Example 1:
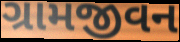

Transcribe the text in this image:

ગ્રામજીવન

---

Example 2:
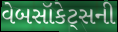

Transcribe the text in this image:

વેબસૉકેટ્સની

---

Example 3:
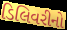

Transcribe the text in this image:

ડિલિવરીનો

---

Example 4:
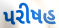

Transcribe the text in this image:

પરીષહ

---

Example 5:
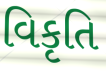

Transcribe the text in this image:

વિકૃતિ